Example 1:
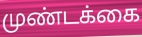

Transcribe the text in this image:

முண்டக்கை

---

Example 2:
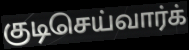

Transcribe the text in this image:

குடிசெய்வார்க்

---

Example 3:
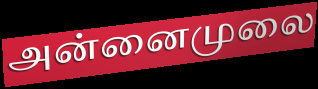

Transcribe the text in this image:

அன்னைமுலை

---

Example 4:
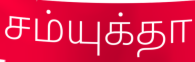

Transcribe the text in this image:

சம்யுக்தா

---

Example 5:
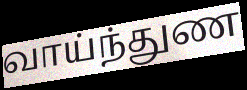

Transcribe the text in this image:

வாய்ந்துண